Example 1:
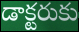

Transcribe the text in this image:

డాక్టరుకు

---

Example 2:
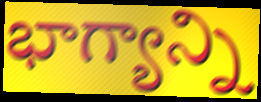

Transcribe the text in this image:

భాగ్యాన్ని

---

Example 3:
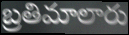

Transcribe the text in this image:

బ్రతిమాలారు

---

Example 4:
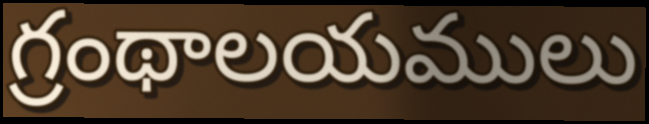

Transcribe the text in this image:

గ్రంథాలయములు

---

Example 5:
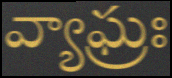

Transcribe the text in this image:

వ్యాఘ్రః